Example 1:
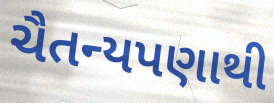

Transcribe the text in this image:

ચૈતન્યપણાથી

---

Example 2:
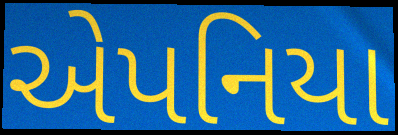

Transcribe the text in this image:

એપનિયા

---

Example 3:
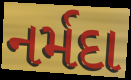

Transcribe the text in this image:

નર્મદા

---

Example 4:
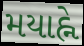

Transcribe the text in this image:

મયાહ્ને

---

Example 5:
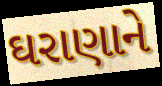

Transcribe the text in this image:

ઘરાણાને